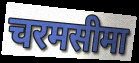
चरमसीमा